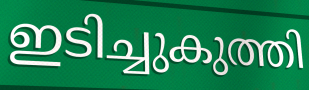
ഇടിച്ചുകുത്തി